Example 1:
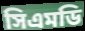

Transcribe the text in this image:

সিএমডি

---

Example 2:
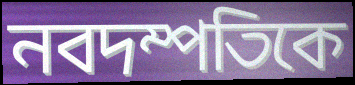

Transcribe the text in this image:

নবদম্পতিকে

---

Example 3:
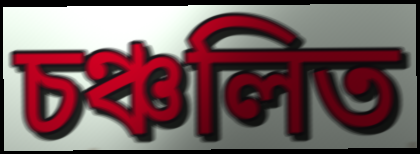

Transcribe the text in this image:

চঞ্চলিত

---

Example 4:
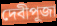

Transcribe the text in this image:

দেবীপূজা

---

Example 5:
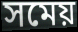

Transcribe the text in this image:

সমেয়